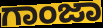
ಗಾಂಜಾ